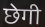
छेगी